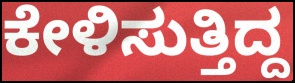
ಕೇಳಿಸುತ್ತಿದ್ದ